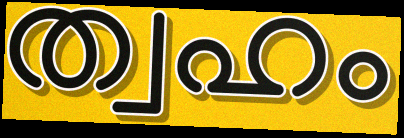
ത്വഹം